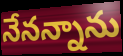
నేనన్నాను